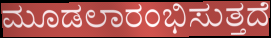
ಮೂಡಲಾರಂಭಿಸುತ್ತದೆ